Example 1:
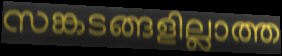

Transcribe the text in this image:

സങ്കടങ്ങളില്ലാത്ത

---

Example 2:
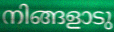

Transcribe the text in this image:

നിങ്ങളാടു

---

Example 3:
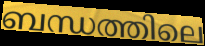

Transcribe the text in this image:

ബന്ധത്തിലെ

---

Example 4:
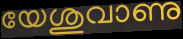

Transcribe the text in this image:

യേശുവാണു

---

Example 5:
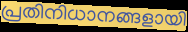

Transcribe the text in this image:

പ്രതിനിധാനങ്ങളായി